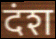
दंश